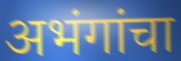
अभंगांचा